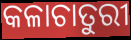
କଳାଚାତୁରୀ